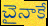
చైనాకే